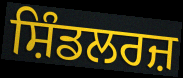
ਸ਼ਿੰਡਲਰਜ਼